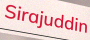
Sirajuddin